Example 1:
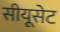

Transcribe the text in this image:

सीयूसेट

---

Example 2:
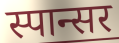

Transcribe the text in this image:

स्पान्सर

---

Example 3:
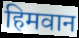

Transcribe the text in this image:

हिमवान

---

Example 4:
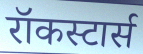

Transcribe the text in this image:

रॉकस्टार्स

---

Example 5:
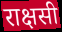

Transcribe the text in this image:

राक्षसी